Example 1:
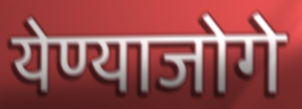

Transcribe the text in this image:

येण्याजोगे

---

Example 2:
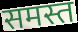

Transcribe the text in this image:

समस्त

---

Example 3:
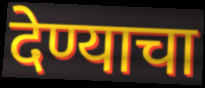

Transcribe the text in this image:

देण्याचा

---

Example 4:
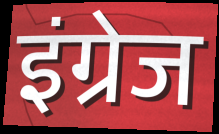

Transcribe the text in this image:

इंग्रेज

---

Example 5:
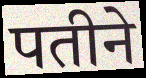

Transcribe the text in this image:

पतीने